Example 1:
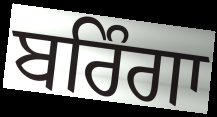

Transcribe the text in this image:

ਬਰਿੰਗਾ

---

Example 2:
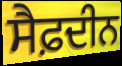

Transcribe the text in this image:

ਸੈਫ਼ਦੀਨ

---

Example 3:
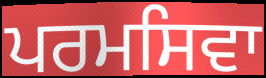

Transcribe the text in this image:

ਪਰਮਸਿਵਾ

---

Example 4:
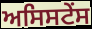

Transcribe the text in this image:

ਅਸਿਸਟੇਂਸ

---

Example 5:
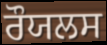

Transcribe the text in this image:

ਰੌਯਲਸ